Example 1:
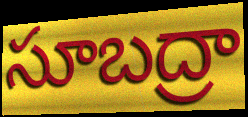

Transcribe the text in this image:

సూబద్రా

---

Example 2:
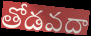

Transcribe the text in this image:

తోడవదా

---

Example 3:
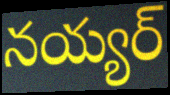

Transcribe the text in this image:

నయ్యర్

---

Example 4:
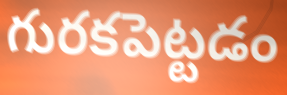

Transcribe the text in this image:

గురకపెట్టడం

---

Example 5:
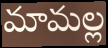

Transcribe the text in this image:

మామల్ల